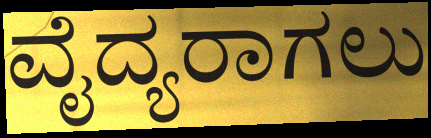
ವೈದ್ಯರಾಗಲು